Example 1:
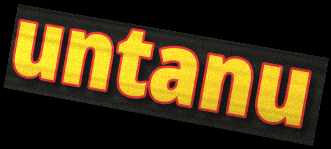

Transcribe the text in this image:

untanu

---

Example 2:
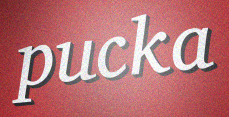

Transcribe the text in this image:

pucka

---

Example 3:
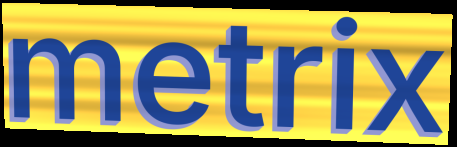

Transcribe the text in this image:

metrix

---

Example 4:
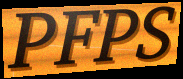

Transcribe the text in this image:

PFPS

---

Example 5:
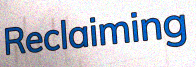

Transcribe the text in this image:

Reclaiming